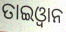
ତାଇଓ୍ୱାନ